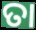
ତା